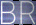
BR